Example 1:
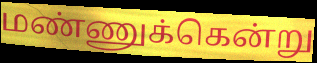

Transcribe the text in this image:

மண்ணுக்கென்று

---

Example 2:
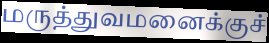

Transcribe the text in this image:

மருத்துவமனைக்குச்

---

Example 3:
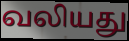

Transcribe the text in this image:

வலியது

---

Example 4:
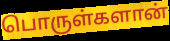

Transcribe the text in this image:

பொருள்களான்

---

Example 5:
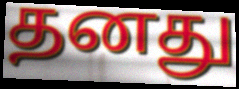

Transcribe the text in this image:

தனது